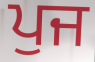
ਪੁਜ